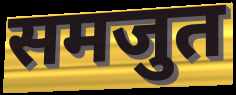
समजुत